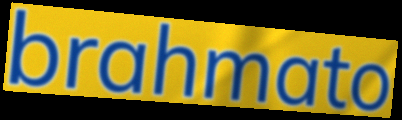
brahmato